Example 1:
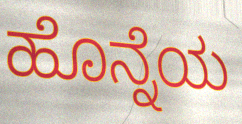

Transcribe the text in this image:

ಹೊನ್ನೆಯ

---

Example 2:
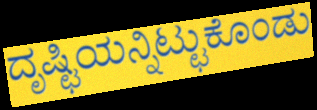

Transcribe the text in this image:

ದೃಷ್ಟಿಯನ್ನಿಟ್ಟುಕೊಂಡು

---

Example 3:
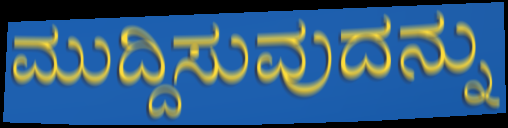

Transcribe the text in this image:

ಮುದ್ದಿಸುವುದನ್ನು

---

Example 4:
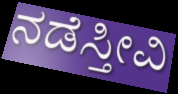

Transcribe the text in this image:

ನಡೆಸ್ತೀವಿ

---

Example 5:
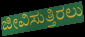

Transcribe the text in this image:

ಜೀವಿಸುತ್ತಿರಲು